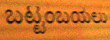
ಬಟ್ಟಂಬಯಲು